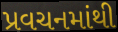
પ્રવચનમાંથી